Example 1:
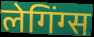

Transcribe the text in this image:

लेगिंग्स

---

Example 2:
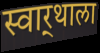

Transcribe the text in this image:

स्वार्थाला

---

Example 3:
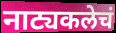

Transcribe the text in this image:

नाट्यकलेचं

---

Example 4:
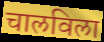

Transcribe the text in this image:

चालविला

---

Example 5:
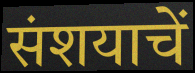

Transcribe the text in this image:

संशयाचें